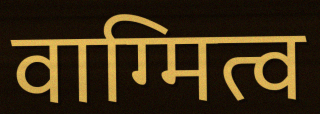
वाग्मित्व